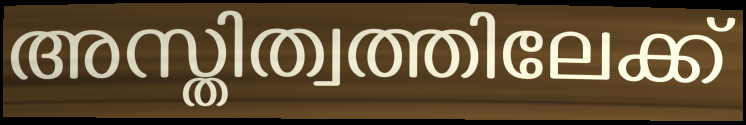
അസ്തിത്വത്തിലേക്ക്